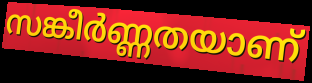
സങ്കീർണ്ണതയാണ്